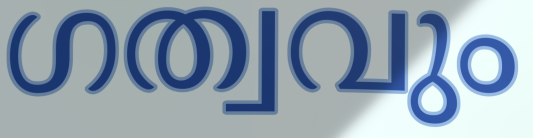
ഗത്വവും